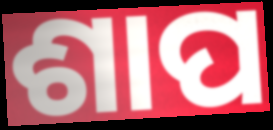
ଶାପ